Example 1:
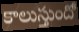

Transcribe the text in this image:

కాలుస్తుందో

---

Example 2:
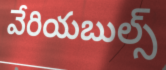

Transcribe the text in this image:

వేరియబుల్స్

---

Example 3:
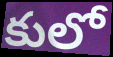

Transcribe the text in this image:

కులో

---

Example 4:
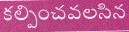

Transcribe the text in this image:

కల్పించవలసిన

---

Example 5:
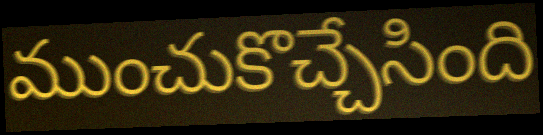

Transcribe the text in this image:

ముంచుకొచ్చేసింది